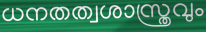
ധനതത്വശാസ്ത്രവും